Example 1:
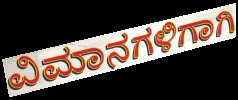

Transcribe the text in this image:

ವಿಮಾನಗಳಿಗಾಗಿ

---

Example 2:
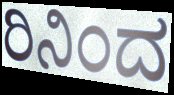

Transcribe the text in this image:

ರಿನಿಂದ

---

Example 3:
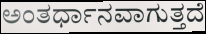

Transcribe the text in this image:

ಅಂತರ್ಧಾನವಾಗುತ್ತದೆ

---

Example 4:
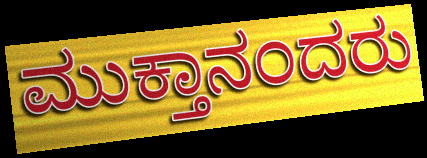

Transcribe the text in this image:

ಮುಕ್ತಾನಂದರು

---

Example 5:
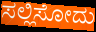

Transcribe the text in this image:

ಸಲ್ಲಿಸೋದು